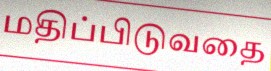
மதிப்பிடுவதை